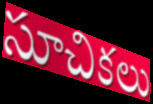
సూచికలు